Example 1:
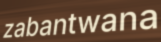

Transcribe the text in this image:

zabantwana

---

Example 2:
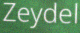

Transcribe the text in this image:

Zeydel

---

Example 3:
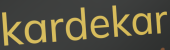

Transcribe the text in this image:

kardekar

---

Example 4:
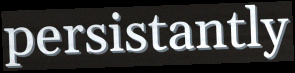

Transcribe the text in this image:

persistantly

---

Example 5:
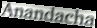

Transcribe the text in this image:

Anandacha